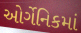
ઓર્ગેનિકમાં